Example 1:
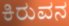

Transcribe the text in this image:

ಕಿರುವನ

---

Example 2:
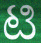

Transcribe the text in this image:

ಟಿ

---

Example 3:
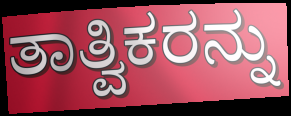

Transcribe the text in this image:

ತಾತ್ವಿಕರನ್ನು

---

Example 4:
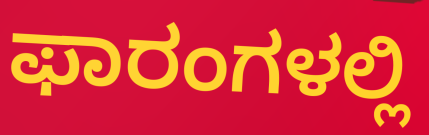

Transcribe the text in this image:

ಫಾರಂಗಳಲ್ಲಿ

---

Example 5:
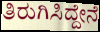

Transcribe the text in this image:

ತಿರುಗಿಸಿದ್ದೇನೆ